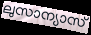
ലുസാന്യാസ്